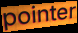
pointer